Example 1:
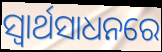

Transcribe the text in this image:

ସ୍ବାର୍ଥସାଧନରେ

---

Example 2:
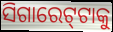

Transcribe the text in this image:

ସିଗାରେଟ୍‍ଟାକୁ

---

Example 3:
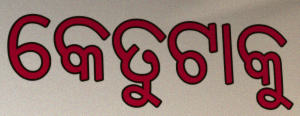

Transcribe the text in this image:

କେତୁଟାକୁ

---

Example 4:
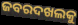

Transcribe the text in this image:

ଜବରଦଖଲକୁ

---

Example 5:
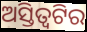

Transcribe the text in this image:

ଅସ୍ତିତ୍ୱଟିର